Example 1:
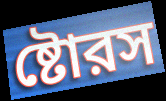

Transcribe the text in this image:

ষ্টোরস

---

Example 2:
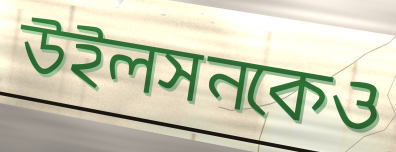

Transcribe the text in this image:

উইলসনকেও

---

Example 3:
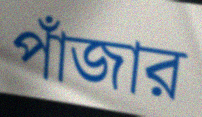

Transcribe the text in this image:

পাঁজার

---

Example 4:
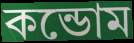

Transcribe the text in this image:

কন্ডোম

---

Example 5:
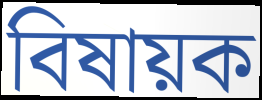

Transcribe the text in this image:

বিষায়ক